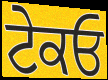
ਟੇਕਓ